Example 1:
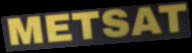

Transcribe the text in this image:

METSAT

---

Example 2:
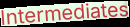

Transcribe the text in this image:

Intermediates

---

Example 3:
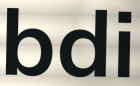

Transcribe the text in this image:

bdi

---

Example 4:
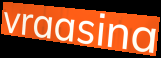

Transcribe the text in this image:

vraasina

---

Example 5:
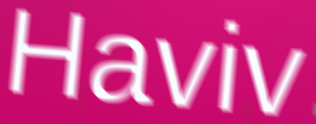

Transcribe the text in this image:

Haviv